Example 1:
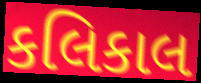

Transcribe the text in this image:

કલિકાલ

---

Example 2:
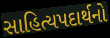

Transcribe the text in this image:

સાહિત્યપદાર્થનો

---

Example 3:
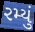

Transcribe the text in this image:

રમ્યું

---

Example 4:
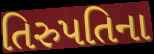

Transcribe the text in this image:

તિરુપતિના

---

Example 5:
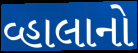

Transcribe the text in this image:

વ્હાલાનો